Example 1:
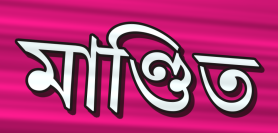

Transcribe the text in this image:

মাণ্ডিত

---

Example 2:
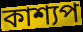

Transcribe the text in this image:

কাশ্যপ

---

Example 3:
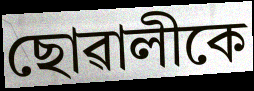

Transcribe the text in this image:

ছোৱালীকে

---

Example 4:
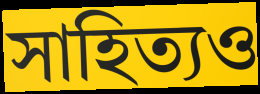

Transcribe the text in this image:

সাহিত্যও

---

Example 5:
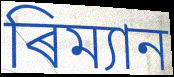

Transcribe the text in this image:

ৰিম্যান